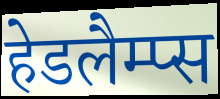
हेडलैम्प्स